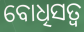
ବୋଧିସତ୍ବ